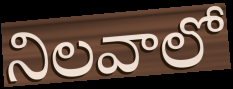
నిలవాలో